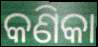
କଣିକା